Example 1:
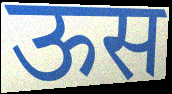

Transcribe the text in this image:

ऊस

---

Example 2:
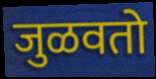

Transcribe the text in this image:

जुळवतो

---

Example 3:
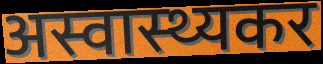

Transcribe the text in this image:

अस्वास्थ्यकर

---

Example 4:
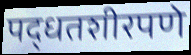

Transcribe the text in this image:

पद्धतशीरपणे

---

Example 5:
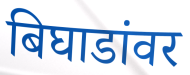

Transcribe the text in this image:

बिघाडांवर